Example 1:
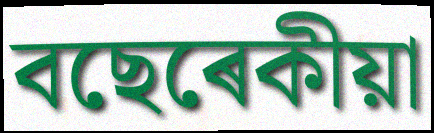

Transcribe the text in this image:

বছেৰেকীয়া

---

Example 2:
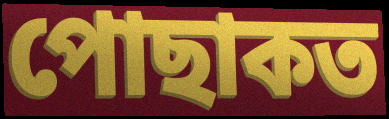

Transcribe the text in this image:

পোছাকত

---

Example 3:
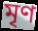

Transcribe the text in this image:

মৃণ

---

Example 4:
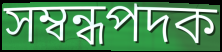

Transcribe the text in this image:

সম্বন্ধপদক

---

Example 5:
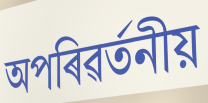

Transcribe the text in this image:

অপৰিৱৰ্তনীয়